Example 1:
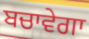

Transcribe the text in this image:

ਬਚਾਵੇਗਾ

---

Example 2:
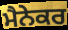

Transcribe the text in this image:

ਮੈਨੇਕਰ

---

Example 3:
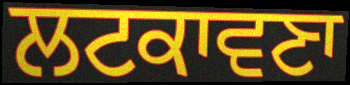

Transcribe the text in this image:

ਲਟਕਾਵਣਾ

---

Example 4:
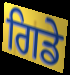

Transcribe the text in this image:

ਗਿਡੇ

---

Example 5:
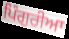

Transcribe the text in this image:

ਪਿੰਗੁਰੀਆ